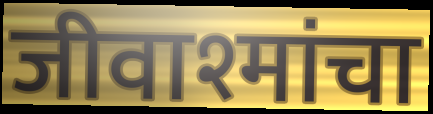
जीवाश्मांचा